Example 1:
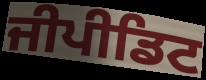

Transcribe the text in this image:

ਜੀਪੀਡਿਟ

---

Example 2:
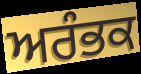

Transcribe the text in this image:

ਅਰੰਭਕ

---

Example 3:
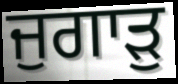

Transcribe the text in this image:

ਜੁਗਾੜੁ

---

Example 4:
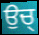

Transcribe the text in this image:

ਉਚ੍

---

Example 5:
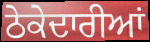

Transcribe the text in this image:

ਠੇਕੇਦਾਰੀਆਂ